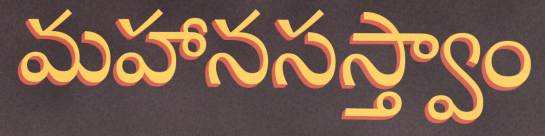
మహానసస్త్వాం